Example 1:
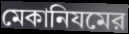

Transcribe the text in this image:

মেকানিযমের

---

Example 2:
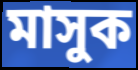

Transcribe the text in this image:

মাসুক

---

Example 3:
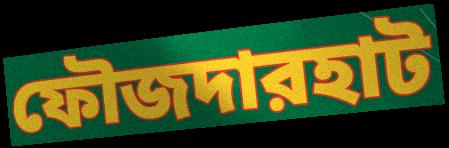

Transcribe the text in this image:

ফৌজদারহাট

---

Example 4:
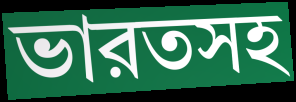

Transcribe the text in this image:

ভারতসহ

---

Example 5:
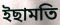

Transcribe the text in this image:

ইছামতি